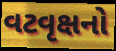
વટવૃક્ષનો